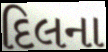
દિલના